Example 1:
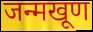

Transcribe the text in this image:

जन्मखूण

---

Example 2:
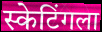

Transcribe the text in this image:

स्केटिंगला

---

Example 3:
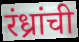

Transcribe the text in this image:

रंध्रांची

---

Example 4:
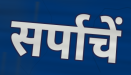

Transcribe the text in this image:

सर्पाचें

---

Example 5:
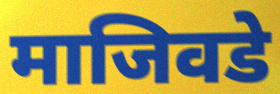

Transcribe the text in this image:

माजिवडे